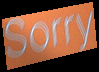
Sorry